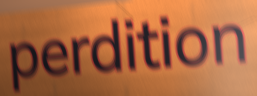
perdition